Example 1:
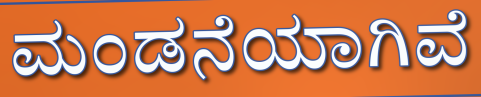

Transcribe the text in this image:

ಮಂಡನೆಯಾಗಿವೆ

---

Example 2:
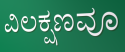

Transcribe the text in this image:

ವಿಲಕ್ಷಣವೂ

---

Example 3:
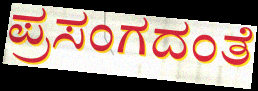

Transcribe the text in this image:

ಪ್ರಸಂಗದಂತೆ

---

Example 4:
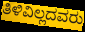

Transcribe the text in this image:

ತಿಳಿವಿಲ್ಲದವರು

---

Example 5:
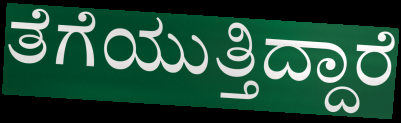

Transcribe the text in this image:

ತೆಗೆಯುತ್ತಿದ್ದಾರೆ